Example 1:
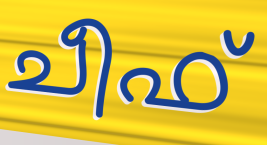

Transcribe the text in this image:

ചീഫ്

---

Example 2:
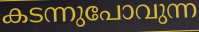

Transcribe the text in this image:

കടന്നുപോവുന്ന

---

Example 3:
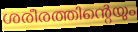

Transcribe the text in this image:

ശരീരത്തിന്റെയും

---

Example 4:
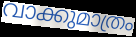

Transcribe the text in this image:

വാക്കുമാത്രം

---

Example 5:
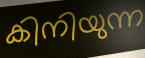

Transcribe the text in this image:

കിനിയുന്ന